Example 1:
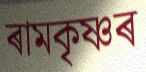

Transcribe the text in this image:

ৰামকৃষ্ণৰ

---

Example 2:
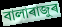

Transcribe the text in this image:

বালাৰাজুৰ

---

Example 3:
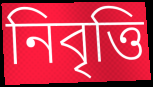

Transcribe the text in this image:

নিবৃত্তি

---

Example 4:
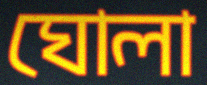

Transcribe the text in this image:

ঘোলা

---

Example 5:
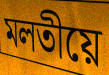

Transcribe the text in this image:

মলতীয়ে